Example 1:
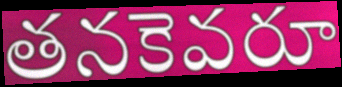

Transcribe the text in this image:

తనకెవరూ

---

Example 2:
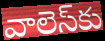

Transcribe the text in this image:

వాలెస్‌కు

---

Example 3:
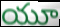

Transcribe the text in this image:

యూ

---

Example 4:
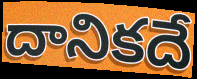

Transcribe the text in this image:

దానికదే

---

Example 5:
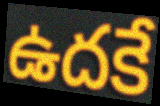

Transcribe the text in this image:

ఉదకే